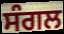
ਸੰਗਲ